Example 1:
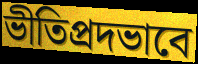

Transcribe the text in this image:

ভীতিপ্রদভাবে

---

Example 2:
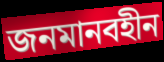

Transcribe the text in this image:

জনমানবহীন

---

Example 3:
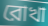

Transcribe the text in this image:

রোখা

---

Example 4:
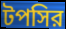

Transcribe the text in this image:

টপসির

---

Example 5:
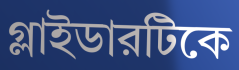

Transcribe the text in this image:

গ্লাইডারটিকে